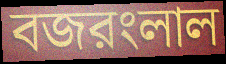
বজরংলাল